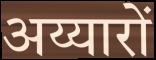
अय्यारों